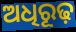
ଅଧିରୂଢ଼